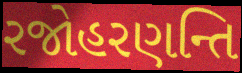
રજોહરણન્તિ